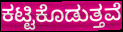
ಕಟ್ಟಿಕೊಡುತ್ತವೆ